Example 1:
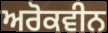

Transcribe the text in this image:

ਅਰੋਕਵੀਨ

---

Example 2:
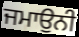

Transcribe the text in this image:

ਜਮਾਉਨੀ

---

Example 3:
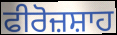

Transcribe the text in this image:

ਫੀਰੋਜ਼ਸ਼ਾਹ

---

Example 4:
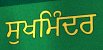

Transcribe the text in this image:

ਸੁਖਮਿੰਦਰ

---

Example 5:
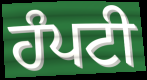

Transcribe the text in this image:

ਹੰਪਟੀ